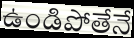
ఉండిపోతేనే